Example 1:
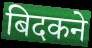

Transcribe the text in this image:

बिदकने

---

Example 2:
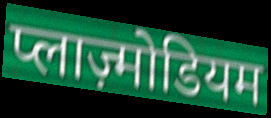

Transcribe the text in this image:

प्लाज़्मोडियम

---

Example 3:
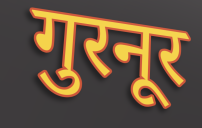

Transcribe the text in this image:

गुरनूर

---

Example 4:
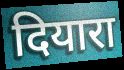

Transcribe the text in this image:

दियारा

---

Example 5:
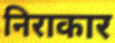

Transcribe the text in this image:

निराकार